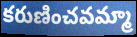
కరుణించవమ్మా